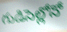
గుడిసెల్లోనో